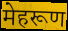
मेहरूण